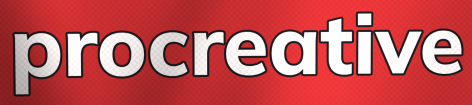
procreative